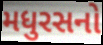
મધુરસનો